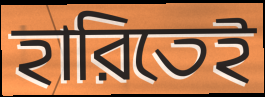
হারিতেই